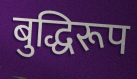
बुद्धिरूप